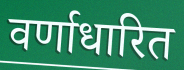
वर्णाधारित